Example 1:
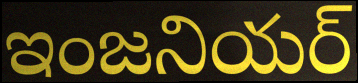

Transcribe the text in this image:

ఇంజనియర్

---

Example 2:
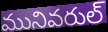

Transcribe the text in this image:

మునివరుల్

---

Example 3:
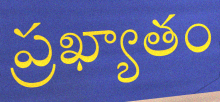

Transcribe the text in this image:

ప్రఖ్యాతం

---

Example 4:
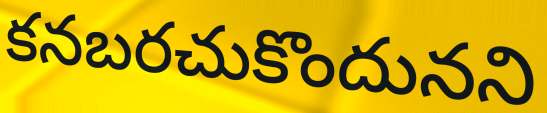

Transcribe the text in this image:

కనబరచుకొందునని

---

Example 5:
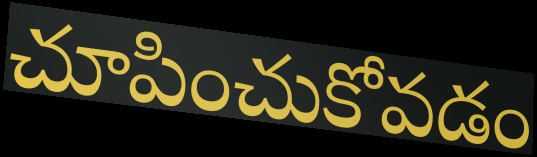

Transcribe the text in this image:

చూపించుకోవడం